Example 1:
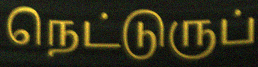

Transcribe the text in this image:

நெட்டுருப்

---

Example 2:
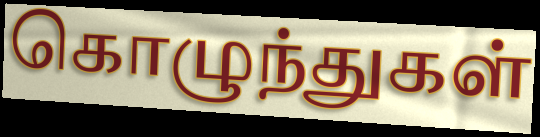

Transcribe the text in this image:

கொழுந்துகள்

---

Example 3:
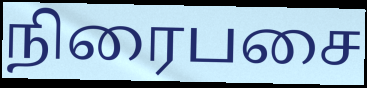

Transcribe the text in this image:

நிரைபசை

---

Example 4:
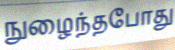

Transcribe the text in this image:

நுழைந்தபோது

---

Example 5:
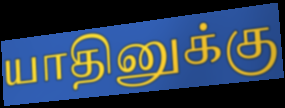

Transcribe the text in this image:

யாதினுக்கு